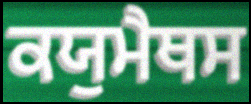
ਕਯੁਮੈਥਸ